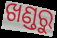
ଖଣ୍ଡରୁ